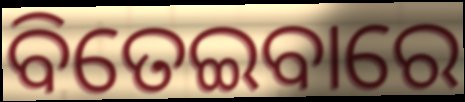
ବିତେଇବାରେ